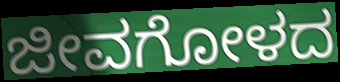
ಜೀವಗೋಳದ